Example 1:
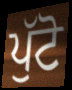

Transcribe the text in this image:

ਪੁੱਟੋ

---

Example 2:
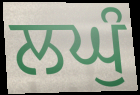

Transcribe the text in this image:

ਲਘੁੰ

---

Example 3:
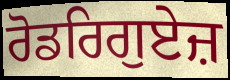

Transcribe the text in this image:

ਰੋਡਰਿਗੁਏਜ਼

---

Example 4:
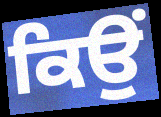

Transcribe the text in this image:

ਕਿਉੰ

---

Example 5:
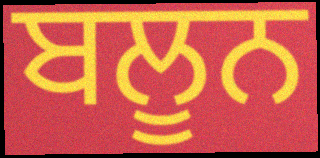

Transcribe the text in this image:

ਬਲੂਨ